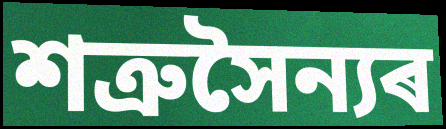
শত্ৰুসৈন্যৰ